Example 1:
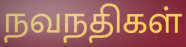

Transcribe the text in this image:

நவநதிகள்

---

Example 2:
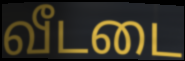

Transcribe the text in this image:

வீடடை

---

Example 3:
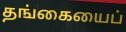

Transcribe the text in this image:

தங்கையைப்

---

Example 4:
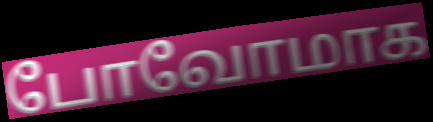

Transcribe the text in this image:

போவோமாக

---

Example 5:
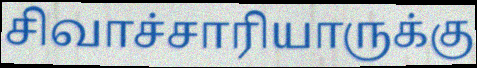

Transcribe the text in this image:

சிவாச்சாரியாருக்கு